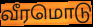
வீரமொடு